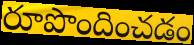
రూపొందించడం